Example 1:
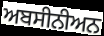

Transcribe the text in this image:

ਅਬਸੀਨੀਅਨ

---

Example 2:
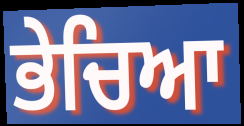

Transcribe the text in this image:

ਭੇਚਿਆ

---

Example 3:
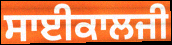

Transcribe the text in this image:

ਸਾਈਕਾਲਜੀ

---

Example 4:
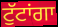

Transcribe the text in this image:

ਟੁੱਟਾਂਗਾ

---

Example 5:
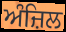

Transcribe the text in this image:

ਅੰਜ਼ਿਲ